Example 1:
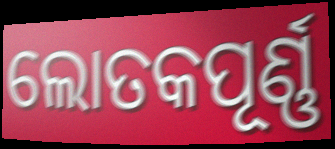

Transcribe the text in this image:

ଲୋତକପୂର୍ଣ୍ଣ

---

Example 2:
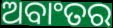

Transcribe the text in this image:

ଅବାଂତର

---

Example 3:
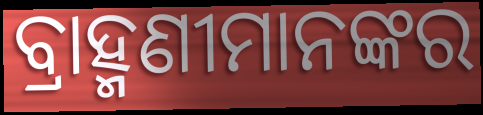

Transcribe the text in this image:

ବ୍ରାହ୍ମଣୀମାନଙ୍କର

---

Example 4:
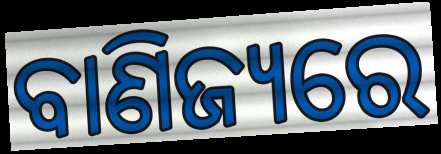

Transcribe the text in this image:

ବାଣିଜ୍ୟରେ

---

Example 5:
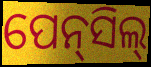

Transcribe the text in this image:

ପେନ୍‌ସିଲ୍